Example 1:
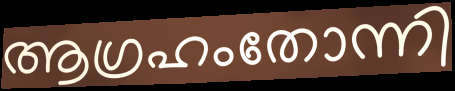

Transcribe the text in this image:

ആഗ്രഹംതോന്നി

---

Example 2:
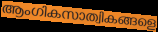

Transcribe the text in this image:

ആംഗികസാത്വികങ്ങളെ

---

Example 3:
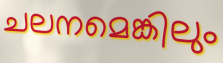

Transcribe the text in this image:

ചലനമെങ്കിലും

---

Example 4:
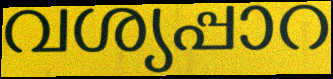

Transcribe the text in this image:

വശ്യപ്പാറ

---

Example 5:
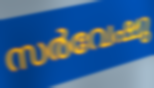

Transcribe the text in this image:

സർവേഷു